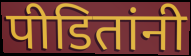
पीडितांनी